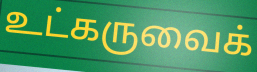
உட்கருவைக்